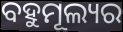
ବହୁମୂଲ୍ୟର